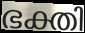
ഭക്തി